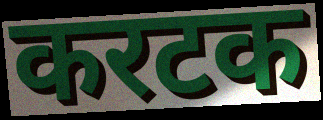
करटक